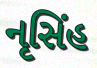
નૃસિંહ